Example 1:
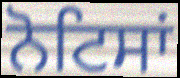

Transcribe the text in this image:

ਨੋਟਿਸਾਂ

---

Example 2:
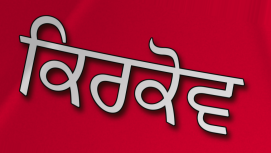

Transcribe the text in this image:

ਕਿਰਕੋਵ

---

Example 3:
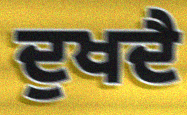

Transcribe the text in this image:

ਦੁਖਦੈ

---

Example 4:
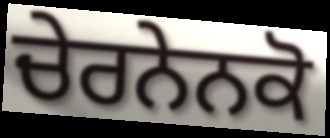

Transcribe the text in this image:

ਚੇਰਨੇਨਕੋ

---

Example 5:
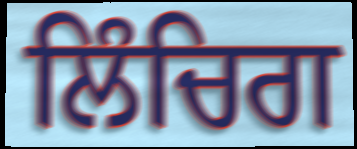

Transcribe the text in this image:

ਲਿੰਚਿਗ